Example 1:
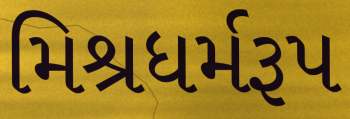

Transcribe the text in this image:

મિશ્રધર્મરૂપ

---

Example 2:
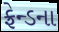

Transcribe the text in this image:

ફ્રેન્ડના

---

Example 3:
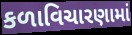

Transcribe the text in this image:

કળાવિચારણામાં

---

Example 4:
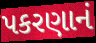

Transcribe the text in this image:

પકરણાનં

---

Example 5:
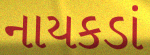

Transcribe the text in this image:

નાયકડાં